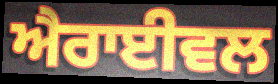
ਐਰਾਈਵਲ